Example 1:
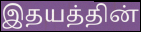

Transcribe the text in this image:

இதயத்தின்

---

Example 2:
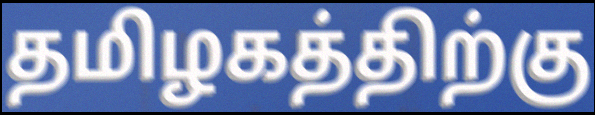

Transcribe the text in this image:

தமிழகத்திற்கு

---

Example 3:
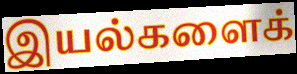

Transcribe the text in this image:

இயல்களைக்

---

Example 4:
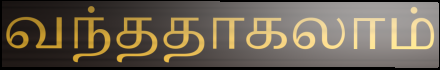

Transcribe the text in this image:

வந்ததாகலாம்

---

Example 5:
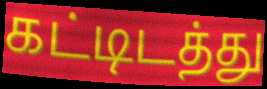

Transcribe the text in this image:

கட்டிடத்து